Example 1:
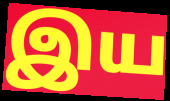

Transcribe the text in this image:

இய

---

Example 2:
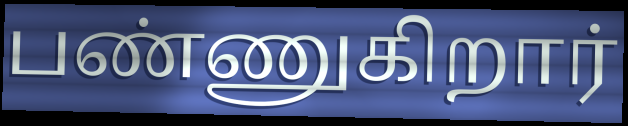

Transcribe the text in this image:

பண்ணுகிறார்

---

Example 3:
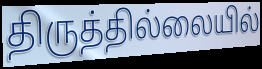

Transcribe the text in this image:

திருத்தில்லையில்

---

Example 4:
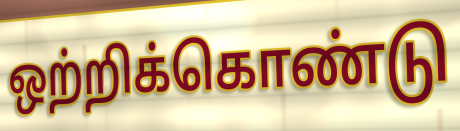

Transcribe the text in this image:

ஒற்றிக்கொண்டு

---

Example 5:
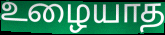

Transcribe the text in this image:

உழையாத